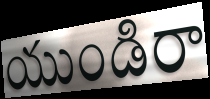
యుండిరా